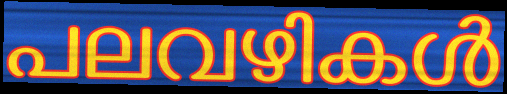
പലവഴികൾ